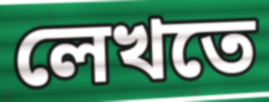
লেখতে